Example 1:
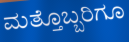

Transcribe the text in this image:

ಮತ್ತೊಬ್ಬರಿಗೂ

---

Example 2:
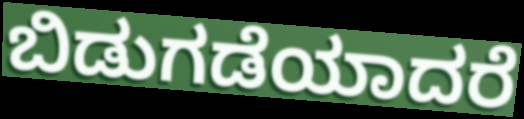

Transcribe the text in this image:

ಬಿಡುಗಡೆಯಾದರೆ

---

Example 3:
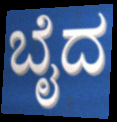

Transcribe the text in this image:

ಬೈದ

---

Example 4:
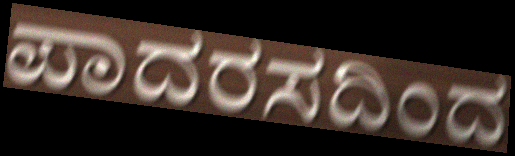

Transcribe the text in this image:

ಪಾದರಸದಿಂದ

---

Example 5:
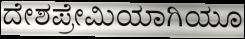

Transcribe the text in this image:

ದೇಶಪ್ರೇಮಿಯಾಗಿಯೂ